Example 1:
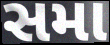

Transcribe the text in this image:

સમા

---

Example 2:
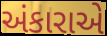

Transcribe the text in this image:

અંકારાએ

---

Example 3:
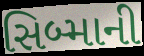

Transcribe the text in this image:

સિબ્માની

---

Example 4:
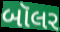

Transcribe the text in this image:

બૉલર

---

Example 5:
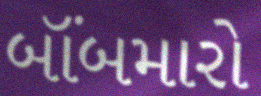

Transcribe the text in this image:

બૉંબમારો